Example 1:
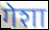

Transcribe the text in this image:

गेशा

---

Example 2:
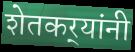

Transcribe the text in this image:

शेतकर्यांनी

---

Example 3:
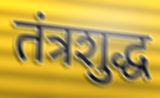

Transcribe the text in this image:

तंत्रशुद्ध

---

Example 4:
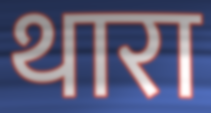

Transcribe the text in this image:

थारा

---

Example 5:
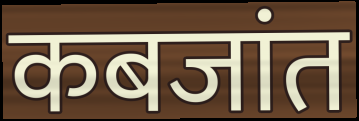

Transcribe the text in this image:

कबजांत